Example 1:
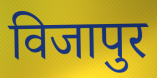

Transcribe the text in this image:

विजापुर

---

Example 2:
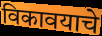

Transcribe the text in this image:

विकावयाचे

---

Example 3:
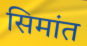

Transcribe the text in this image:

सिमांत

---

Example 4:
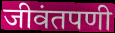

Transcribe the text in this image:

जीवंतपणी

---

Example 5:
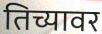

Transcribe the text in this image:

तिच्यावर